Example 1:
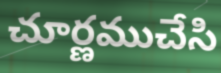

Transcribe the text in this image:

చూర్ణముచేసి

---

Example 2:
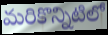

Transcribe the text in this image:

మరికొన్నిటిలో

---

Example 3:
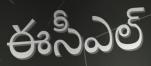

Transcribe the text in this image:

ఈసీఎల్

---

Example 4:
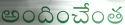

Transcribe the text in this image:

అందించేంత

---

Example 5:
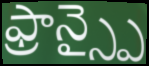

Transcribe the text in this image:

ఫ్రాన్స్పై